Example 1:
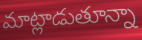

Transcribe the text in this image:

మాట్లాడుతూన్నా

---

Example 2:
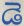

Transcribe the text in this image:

డె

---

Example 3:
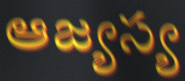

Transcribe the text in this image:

ఆజ్యస్య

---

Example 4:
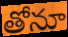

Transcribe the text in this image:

తోనూ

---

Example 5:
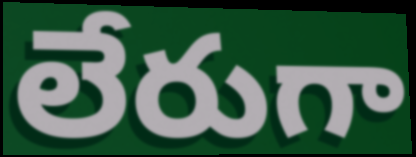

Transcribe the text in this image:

లేరుగా